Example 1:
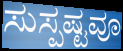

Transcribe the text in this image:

ಸುಸ್ಪಷ್ಟವೂ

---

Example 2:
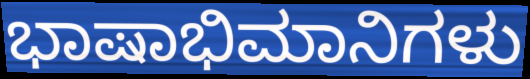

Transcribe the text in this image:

ಭಾಷಾಭಿಮಾನಿಗಳು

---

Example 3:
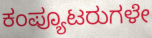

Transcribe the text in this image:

ಕಂಪ್ಯೂಟರುಗಳೇ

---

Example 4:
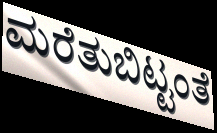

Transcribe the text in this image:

ಮರೆತುಬಿಟ್ಟಂತೆ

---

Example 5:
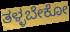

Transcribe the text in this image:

ತಳ್ಳಬೇಕೋ